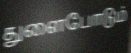
துளைபோடும்